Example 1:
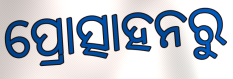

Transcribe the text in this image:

ପ୍ରୋତ୍ସାହନରୁ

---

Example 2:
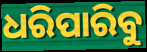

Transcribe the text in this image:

ଧରିପାରିବୁ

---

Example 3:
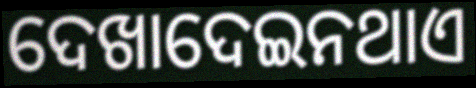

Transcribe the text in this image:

ଦେଖାଦେଇନଥାଏ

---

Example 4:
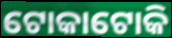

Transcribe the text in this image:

ଟୋକାଟୋକି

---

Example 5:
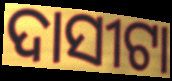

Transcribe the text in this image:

ଦାସୀଟା